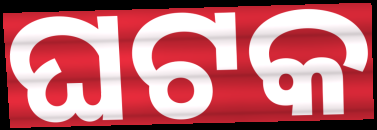
ଘଟକ